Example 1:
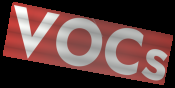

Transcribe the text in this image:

VOCs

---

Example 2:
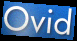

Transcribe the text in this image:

Ovid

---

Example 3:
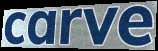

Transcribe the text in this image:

carve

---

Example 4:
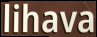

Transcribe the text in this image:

lihava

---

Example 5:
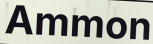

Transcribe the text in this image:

Ammon